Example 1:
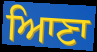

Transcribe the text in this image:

ਆਿਣਾ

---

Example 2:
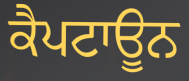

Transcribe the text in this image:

ਕੈਪਟਾਊਨ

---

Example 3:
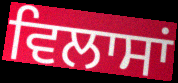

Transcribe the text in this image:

ਵਿਲਾਸਾਂ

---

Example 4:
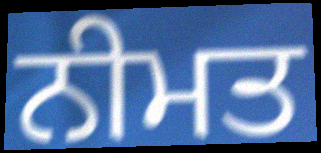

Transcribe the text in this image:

ਨੀਮਤ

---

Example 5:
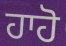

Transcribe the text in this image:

ਹਾਹੋ